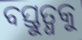
ବସ୍ତୁତ୍ଧକୁ